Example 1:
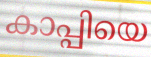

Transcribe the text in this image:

കാപ്പിയെ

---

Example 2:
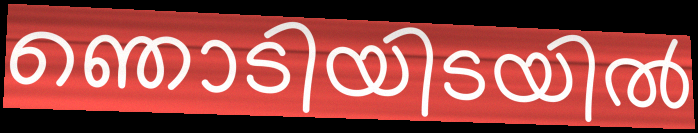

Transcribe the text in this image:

ഞൊടിയിടയിൽ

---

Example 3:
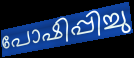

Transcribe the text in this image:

പോഷിപ്പിച്ചു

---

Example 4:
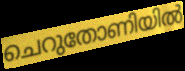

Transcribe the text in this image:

ചെറുതോണിയിൽ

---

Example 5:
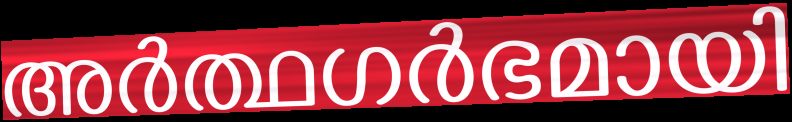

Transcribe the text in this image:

അർത്ഥഗർഭമായി